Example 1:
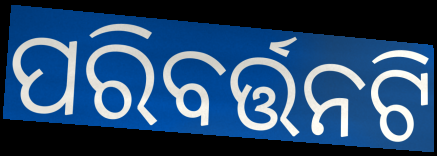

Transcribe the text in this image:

ପରିବର୍ତ୍ତନଟି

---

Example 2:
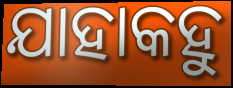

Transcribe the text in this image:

ଯାହାକହୁ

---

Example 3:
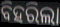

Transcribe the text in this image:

ବିହରିଲା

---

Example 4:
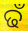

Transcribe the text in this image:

ଢଁ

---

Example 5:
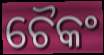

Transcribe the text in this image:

ଚୈକଂ